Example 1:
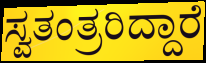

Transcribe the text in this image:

ಸ್ವತಂತ್ರರಿದ್ದಾರೆ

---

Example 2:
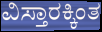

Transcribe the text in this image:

ವಿಸ್ತಾರಕ್ಕಿಂತ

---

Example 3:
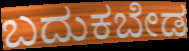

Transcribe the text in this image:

ಬದುಕಬೇಡ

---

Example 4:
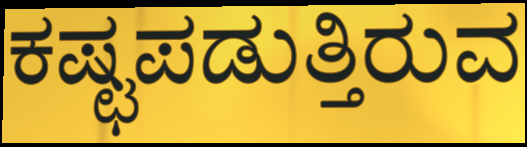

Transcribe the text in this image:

ಕಷ್ಟಪಡುತ್ತಿರುವ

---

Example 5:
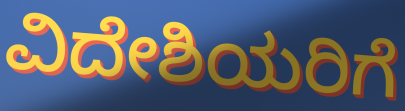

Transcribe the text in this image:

ವಿದೇಶಿಯರಿಗೆ